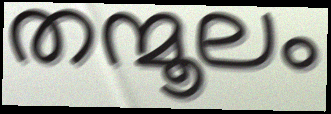
തന്മൂലം